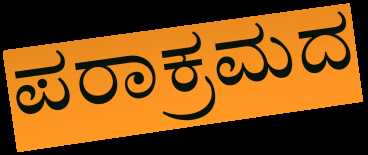
ಪರಾಕ್ರಮದ